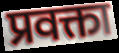
प्रवक्ता